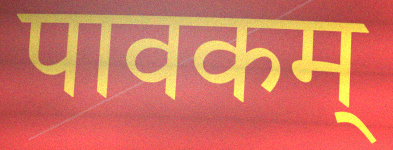
पावकम्